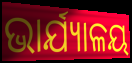
ଭାର୍ଯ୍ୟାଳୟ